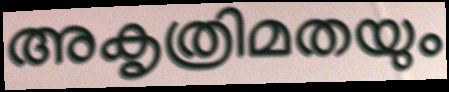
അകൃത്രിമതയും